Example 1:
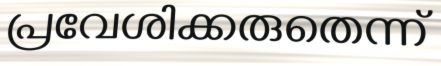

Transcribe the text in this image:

പ്രവേശിക്കരുതെന്ന്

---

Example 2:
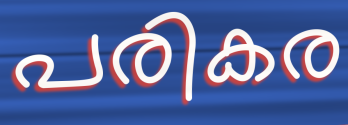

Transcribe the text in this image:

പരികര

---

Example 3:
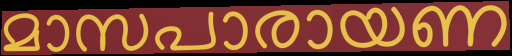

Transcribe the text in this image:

മാസപാരായണ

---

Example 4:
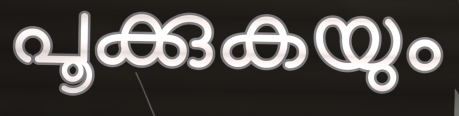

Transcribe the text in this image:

പൂക്കുകയും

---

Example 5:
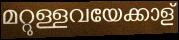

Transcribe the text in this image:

മറ്റുള്ളവയേക്കാള്